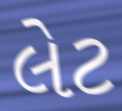
લેટ